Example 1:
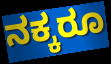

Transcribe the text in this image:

ನಕ್ಕರೂ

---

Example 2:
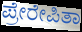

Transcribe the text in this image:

ಪ್ರೇರೇಪಿತಾ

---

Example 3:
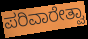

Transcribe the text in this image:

ಪರಿವಾರೇತ್ವಾ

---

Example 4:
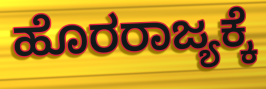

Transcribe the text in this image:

ಹೊರರಾಜ್ಯಕ್ಕೆ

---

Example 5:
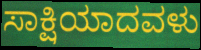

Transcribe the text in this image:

ಸಾಕ್ಷಿಯಾದವಳು